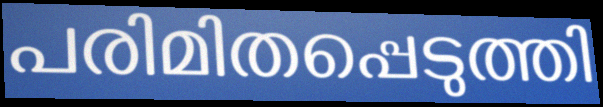
പരിമിതപ്പെടുത്തി